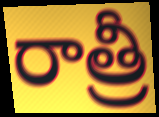
రాత్రీ